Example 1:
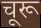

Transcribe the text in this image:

चूरू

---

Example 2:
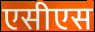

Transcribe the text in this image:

एसीएस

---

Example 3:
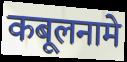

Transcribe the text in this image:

कबूलनामे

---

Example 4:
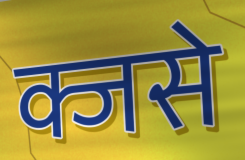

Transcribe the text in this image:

क्जसे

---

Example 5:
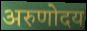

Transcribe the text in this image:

अरुणोदय